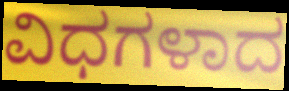
ವಿಧಗಳಾದ